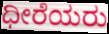
ಧೀರೆಯರು